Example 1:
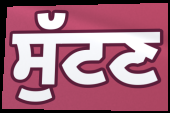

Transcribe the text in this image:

ਸੁੱਟਣ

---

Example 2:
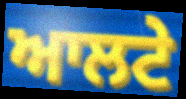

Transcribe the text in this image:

ਆਲਟੇ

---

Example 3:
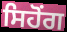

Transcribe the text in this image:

ਸਿਹੋਂਗ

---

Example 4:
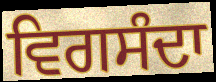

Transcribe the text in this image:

ਵਿਗਸੰਦਾ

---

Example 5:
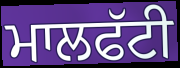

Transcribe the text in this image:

ਮਾਲਫੱਟੀ